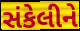
સંકેલીને